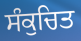
ਸੰਕੁਚਿਤ